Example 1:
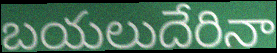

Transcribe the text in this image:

బయలుదేరినా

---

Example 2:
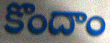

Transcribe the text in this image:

కొందాం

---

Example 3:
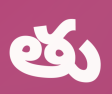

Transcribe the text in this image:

తు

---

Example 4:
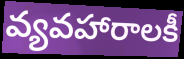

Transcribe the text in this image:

వ్యవహారాలకీ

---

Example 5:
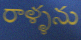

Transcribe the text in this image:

రాళ్ళను